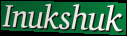
Inukshuk